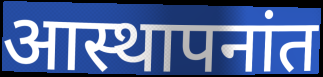
आस्थापनांत